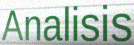
Analisis